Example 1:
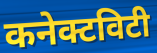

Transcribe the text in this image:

कनेक्टविटी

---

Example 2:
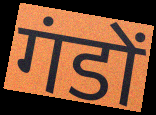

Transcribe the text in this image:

गंडों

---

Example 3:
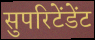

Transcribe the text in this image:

सुपरिटेंडेंट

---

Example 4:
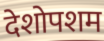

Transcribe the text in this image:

देशोपशम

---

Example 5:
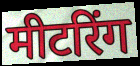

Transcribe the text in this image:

मीटरिंग